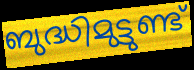
ബുദ്ധിമുട്ടുണ്ട്